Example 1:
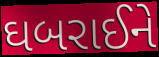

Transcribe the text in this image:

ઘબરાઈને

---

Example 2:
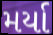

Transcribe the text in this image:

મર્યા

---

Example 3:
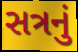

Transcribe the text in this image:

સત્રનું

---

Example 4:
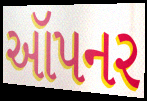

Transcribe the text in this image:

ઑપનર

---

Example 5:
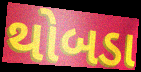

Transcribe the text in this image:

થોબડા